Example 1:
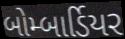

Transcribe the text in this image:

બોમ્બાર્ડિયર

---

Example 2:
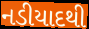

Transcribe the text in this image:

નડીયાદથી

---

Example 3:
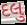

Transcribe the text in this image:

દલુ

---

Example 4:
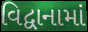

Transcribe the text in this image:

વિદ્વાનામાં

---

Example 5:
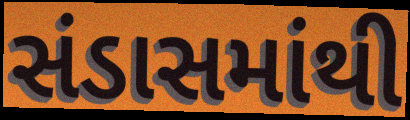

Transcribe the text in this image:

સંડાસમાંથી